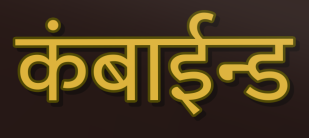
कंबाईन्ड